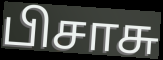
பிசாசு